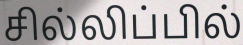
சில்லிப்பில்